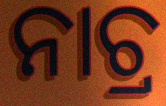
ନାଚ୍ର